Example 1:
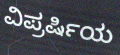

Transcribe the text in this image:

ವಿಪ್ರರ್ಷಿಯ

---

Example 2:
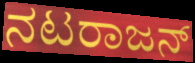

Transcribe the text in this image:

ನಟರಾಜನ್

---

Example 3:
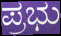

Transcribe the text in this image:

ಪ್ರಭು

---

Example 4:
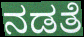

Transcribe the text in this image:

ನಡತೆ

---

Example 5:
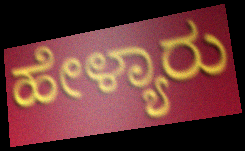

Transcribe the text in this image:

ಹೇಳ್ಯಾರು